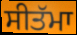
ਸੀਤੱਮਾ